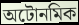
অটোনমিক